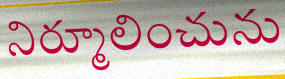
నిర్మూలించును